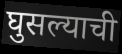
घुसल्याची